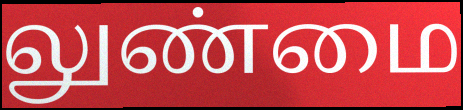
லுண்மை